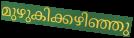
മുഴുകിക്കഴിഞ്ഞു